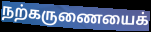
நற்கருணையைக்